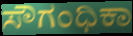
ಸೌಗಂಧಿಕಾ